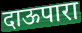
दाऊपारा